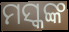
ମସ୍କଙ୍କ